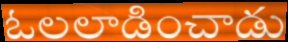
ఓలలాడించాడు